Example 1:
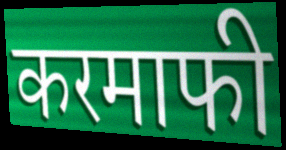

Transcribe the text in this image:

करमाफी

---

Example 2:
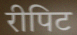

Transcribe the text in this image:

रीपिट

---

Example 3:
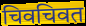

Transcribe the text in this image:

चिवचिवत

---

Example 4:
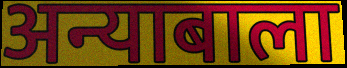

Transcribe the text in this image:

अन्याबाला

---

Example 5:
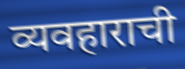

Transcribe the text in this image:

व्यवहाराची